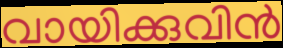
വായിക്കുവിൻ